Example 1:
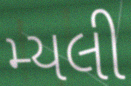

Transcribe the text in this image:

મ્યલી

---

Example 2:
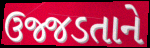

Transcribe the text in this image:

ઉજ્જડતાને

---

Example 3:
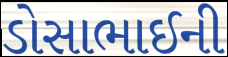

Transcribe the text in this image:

ડોસાભાઈની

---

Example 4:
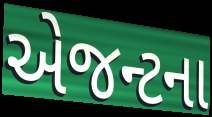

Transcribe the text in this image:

એજન્ટના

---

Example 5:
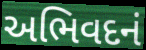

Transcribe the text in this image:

અભિવદનં